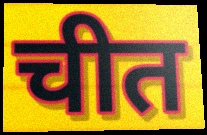
चीत